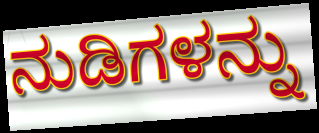
ನುಡಿಗಳನ್ನು